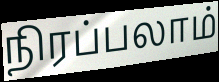
நிரப்பலாம்